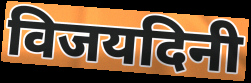
विजयदिनी